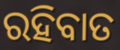
ରହିବାତ